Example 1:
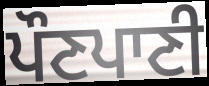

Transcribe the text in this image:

ਪੌਣਪਾਣੀ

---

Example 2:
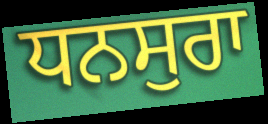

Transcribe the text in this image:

ਧਨਸੁਰਾ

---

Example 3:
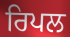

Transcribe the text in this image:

ਰਿਪਲ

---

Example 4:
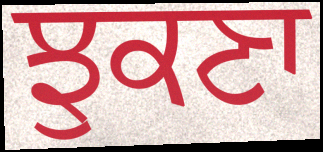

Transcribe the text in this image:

ਝੁਕਣਾ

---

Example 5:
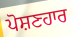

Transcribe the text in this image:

ਪੋਸ਼ਣਹਾਰ